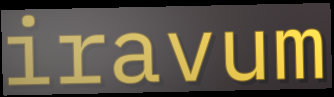
iravum